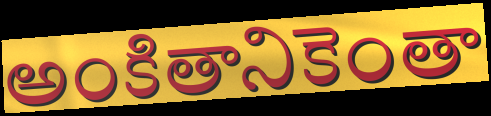
అంకితానికెంతా